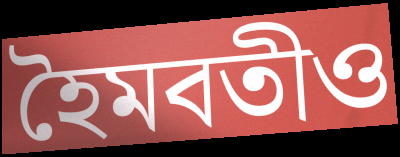
হৈমবতীও